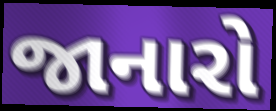
જાનારો